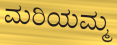
ಮರಿಯಮ್ಮ